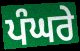
ਪੰਘਰੇ